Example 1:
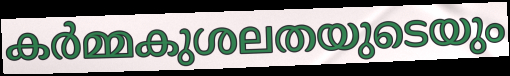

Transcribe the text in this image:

കർമ്മകുശലതയുടെയും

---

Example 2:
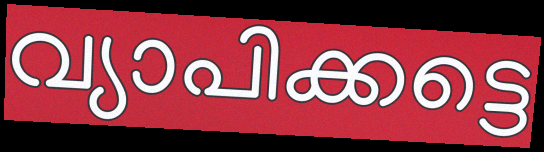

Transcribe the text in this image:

വ്യാപിക്കട്ടെ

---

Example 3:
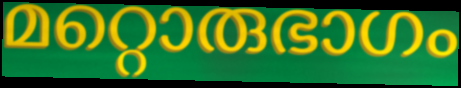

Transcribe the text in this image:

മറ്റൊരുഭാഗം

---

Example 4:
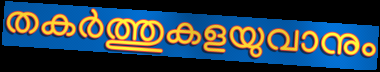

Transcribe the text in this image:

തകർത്തുകളയുവാനും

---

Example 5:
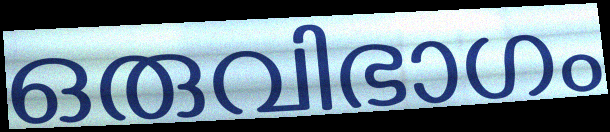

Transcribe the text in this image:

ഒരുവിഭാഗം